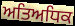
ਅਤਿਅਧਿਕ